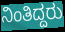
ನಿಂತಿದ್ದರು